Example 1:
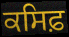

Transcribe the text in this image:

ਕਸਿਫ਼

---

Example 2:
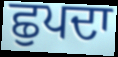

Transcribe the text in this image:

ਛੁਪਦਾ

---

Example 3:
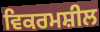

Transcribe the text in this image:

ਵਿਕਰਮਸ਼ੀਲ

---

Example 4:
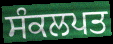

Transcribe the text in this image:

ਸੰਕਲਪਤ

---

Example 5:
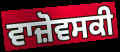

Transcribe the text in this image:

ਵਾਜ਼ੋਵਸਕੀ